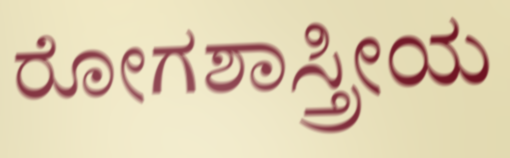
ರೋಗಶಾಸ್ತ್ರೀಯ